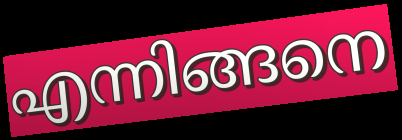
എന്നിങ്ങനെ